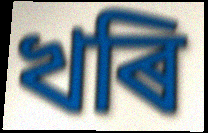
খৰি